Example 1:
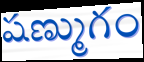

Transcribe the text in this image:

షణ్ముగం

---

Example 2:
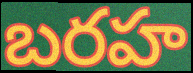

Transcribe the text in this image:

బరహ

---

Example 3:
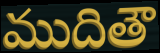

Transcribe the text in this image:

ముదితౌ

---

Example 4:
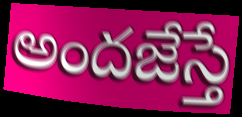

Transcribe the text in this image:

అందజేస్తే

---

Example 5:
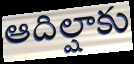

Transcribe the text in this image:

ఆదిల్షాకు